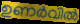
ഉണർവിൽ